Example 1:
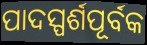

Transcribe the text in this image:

ପାଦସ୍ପର୍ଶପୂର୍ବକ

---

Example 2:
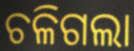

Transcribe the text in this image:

ଚଳିଗଲା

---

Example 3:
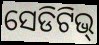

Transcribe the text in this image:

ସେଡିଟିଭ୍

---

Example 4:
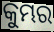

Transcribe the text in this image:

କୁମ୍ଭର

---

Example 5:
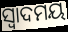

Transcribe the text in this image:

ସ୍ଵାଦମୟ